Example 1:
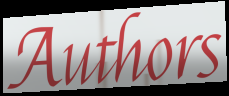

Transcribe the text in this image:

Authors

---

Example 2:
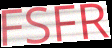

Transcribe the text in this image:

FSFR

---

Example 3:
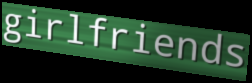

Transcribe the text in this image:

girlfriends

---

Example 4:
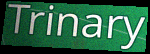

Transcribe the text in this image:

Trinary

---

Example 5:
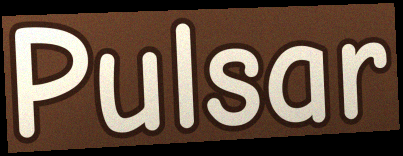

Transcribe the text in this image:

Pulsar